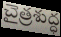
చైత్రశుద్ధ